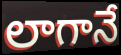
లాగానే